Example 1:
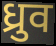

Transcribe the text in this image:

ध्रुव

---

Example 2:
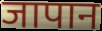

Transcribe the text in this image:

जापान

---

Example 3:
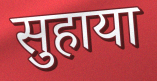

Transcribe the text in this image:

सुहाया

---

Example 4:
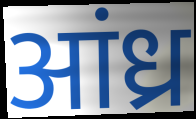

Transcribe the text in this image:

आंध्र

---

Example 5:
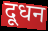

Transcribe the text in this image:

दूधन